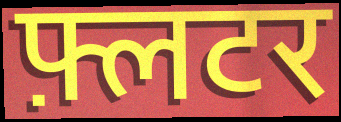
फ़्लटर